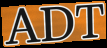
ADT